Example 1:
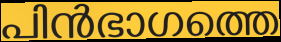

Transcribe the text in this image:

പിൻഭാഗത്തെ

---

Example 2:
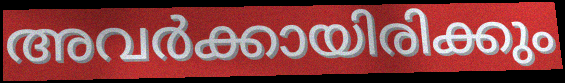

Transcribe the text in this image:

അവർക്കായിരിക്കും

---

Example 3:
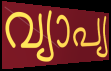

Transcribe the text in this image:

വ്യാപ്യ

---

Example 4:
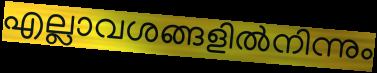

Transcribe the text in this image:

എല്ലാവശങ്ങളിൽനിന്നും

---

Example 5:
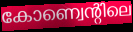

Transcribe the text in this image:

കോണ്വെന്റിലെ